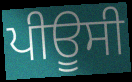
ਪੀਊਸੀ